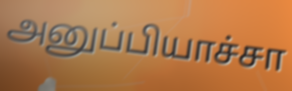
அனுப்பியாச்சா